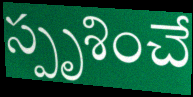
స్పృశించే